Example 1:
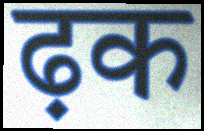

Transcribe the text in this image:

ढ़क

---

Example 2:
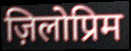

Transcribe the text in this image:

ज़िलोप्रिम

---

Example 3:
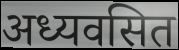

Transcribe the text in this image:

अध्यवसित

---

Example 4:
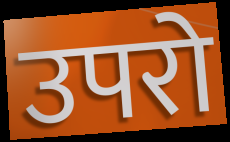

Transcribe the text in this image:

उपरो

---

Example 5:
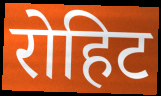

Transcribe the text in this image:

रोहिट